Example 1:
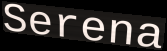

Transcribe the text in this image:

Serena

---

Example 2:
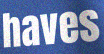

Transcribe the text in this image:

haves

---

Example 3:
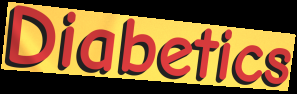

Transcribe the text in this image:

Diabetics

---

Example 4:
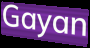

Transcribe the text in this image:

Gayan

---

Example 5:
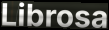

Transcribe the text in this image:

Librosa